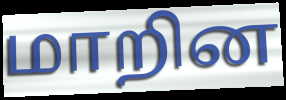
மாறின